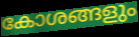
കോശങ്ങളും